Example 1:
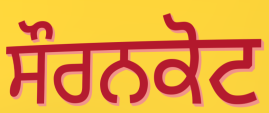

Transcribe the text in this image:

ਸੌਰਨਕੋਟ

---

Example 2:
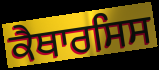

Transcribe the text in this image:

ਕੈਥਾਰਸਿਸ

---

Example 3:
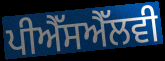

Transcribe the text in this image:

ਪੀਐੱਸਐੱਲਵੀ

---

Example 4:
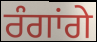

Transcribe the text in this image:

ਰੰਗਾਂਗੇ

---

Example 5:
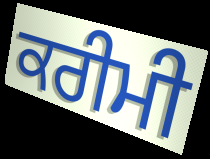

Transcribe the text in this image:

ਕਰੀਮੀ